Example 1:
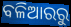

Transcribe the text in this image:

ବଳିଆରରୁ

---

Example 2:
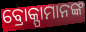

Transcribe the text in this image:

ବ୍ରୋକ୍ପାମାନଙ୍କ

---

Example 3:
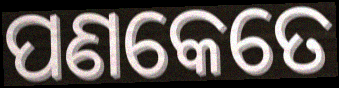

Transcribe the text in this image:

ପଣକେତେ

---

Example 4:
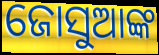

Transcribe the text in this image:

ଜୋସୁଆଙ୍କ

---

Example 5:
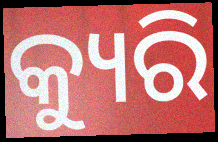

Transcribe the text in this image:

କ୍ୟୁରି